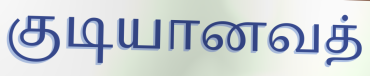
குடியானவத்